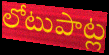
లోటుపాట్ల